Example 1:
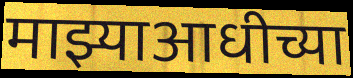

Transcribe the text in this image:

माझ्याआधीच्या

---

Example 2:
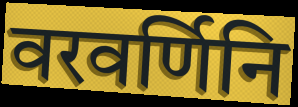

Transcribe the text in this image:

वरवर्णिनि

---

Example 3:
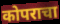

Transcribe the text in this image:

कोपराचा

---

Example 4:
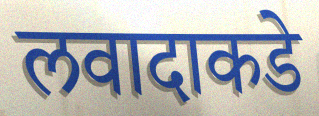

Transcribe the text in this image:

लवादाकडे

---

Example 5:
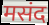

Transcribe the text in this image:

मसंद